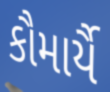
કૌમાર્યૈ